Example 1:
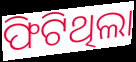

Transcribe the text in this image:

ଫିଟିଥିଲା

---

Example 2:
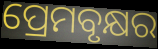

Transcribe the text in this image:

ପ୍ରେମବୃକ୍ଷର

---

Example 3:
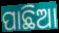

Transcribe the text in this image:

ପାଛିଆ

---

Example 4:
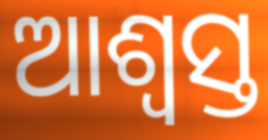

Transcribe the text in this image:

ଆଶ୍ଵସ୍ତ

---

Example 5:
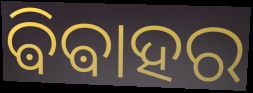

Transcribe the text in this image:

ଵିଵାହର